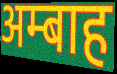
अम्बाह